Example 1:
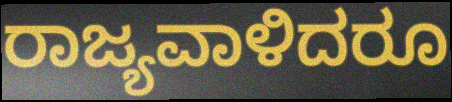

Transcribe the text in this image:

ರಾಜ್ಯವಾಳಿದರೂ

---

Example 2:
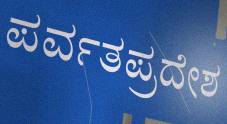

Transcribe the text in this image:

ಪರ್ವತಪ್ರದೇಶ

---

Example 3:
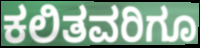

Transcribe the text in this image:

ಕಲಿತವರಿಗೂ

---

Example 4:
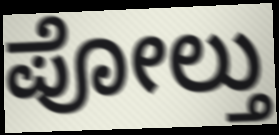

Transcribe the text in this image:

ಪೋಲ್ತು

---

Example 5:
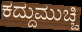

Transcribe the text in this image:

ಕದ್ದುಮುಚ್ಚಿ